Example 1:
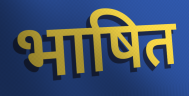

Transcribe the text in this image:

भाषित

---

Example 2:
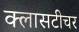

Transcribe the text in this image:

क्लासटीचर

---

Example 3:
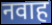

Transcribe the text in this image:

नवाह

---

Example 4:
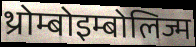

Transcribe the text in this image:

थ्रोम्बोइम्बोलिज्म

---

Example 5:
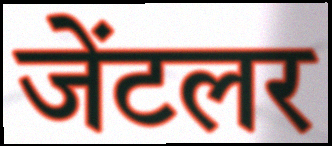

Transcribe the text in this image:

जेंटलर